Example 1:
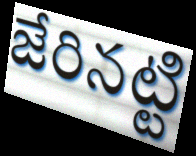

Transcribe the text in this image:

జేరినట్టి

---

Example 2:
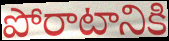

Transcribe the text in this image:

పోరాటానికి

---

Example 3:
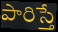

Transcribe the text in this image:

పారిస్తే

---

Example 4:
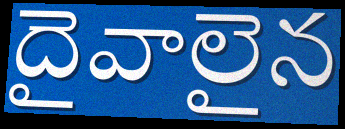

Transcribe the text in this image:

దైవాలైన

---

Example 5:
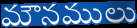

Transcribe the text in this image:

మౌనములు